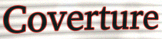
Coverture